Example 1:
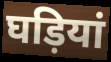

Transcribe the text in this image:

घड़ियां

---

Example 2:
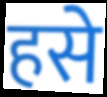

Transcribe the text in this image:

हसे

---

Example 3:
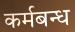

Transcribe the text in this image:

कर्मबन्ध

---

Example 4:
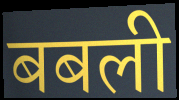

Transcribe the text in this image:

बबली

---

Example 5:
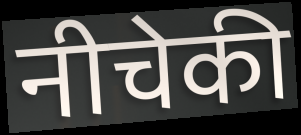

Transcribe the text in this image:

नीचेकी